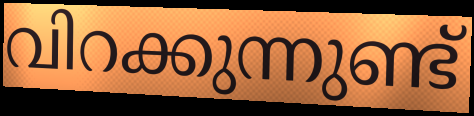
വിറക്കുന്നുണ്ട്